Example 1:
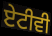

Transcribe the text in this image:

ਏਟੀਵੀ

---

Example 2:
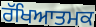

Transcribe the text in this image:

ਰੱਖਿਆਤਮਕ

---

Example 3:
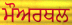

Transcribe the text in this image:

ਮੌਅਰਥਲ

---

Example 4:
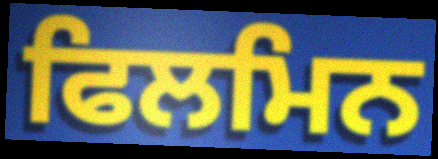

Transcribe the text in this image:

ਫਿਲਮਿਨ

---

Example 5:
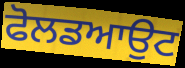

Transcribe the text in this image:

ਫੋਲਡਆਉਟ